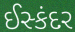
ઈસ્કંદર